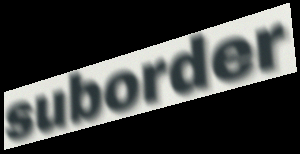
suborder